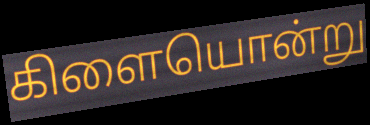
கிளையொன்று